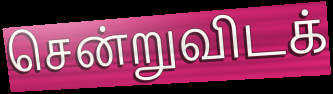
சென்றுவிடக்